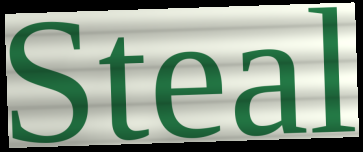
Steal